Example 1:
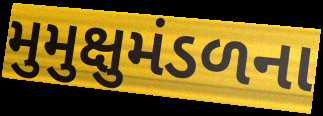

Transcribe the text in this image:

મુમુક્ષુમંડળના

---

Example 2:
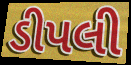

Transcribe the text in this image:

ડીપલી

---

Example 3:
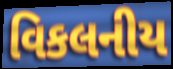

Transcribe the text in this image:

વિકલનીય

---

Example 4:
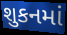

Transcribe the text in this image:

શુકનમાં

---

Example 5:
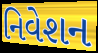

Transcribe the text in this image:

નિવેશન